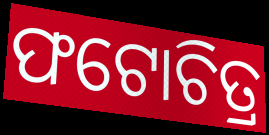
ଫଟୋଚିତ୍ର